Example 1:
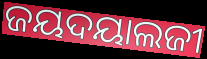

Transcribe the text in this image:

ଜୟଦୟାଲଜୀ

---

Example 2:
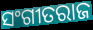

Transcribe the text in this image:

ସଂଗୀତରାଜ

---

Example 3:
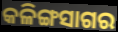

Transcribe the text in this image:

କଳିଙ୍ଗସାଗର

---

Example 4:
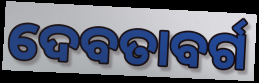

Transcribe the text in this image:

ଦେବତାବର୍ଗ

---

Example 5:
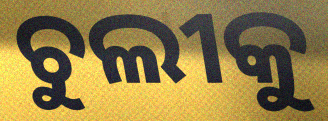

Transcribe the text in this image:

ଚୁଲୀକୁ